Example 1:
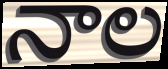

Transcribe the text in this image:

నాల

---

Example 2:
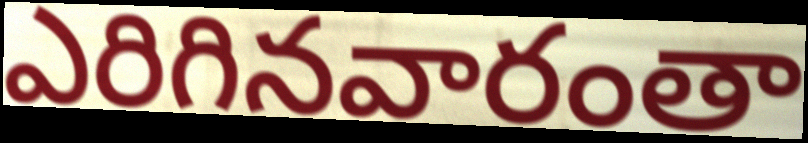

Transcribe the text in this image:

ఎరిగినవారంతా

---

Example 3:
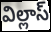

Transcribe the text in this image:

విల్లాస్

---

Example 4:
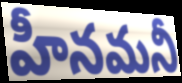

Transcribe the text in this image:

హీనమనీ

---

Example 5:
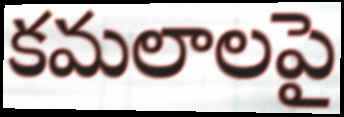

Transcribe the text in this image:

కమలాలపై